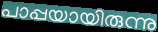
പാപ്പയായിരുന്നു